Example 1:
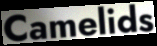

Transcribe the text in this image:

Camelids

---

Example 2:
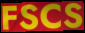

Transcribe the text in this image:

FSCS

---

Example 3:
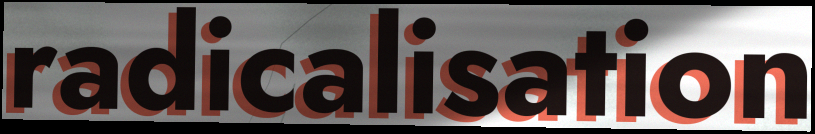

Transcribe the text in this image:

radicalisation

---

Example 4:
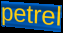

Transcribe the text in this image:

petrel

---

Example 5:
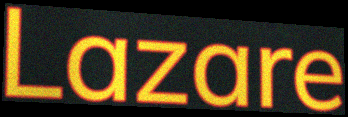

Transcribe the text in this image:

Lazare